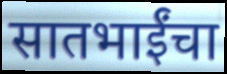
सातभाईंचा